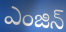
ఎంజిన్